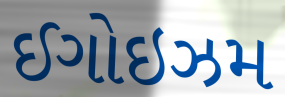
ઈગોઇઝમ